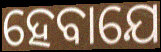
ହେବାଯେ